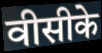
वीसीके